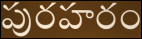
పురహరం